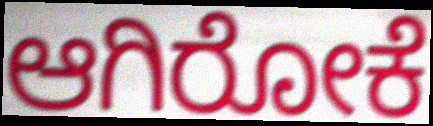
ಆಗಿರೋಕೆ